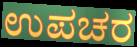
ಉಪಚರ